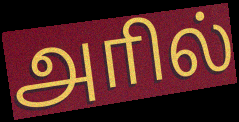
அரில்